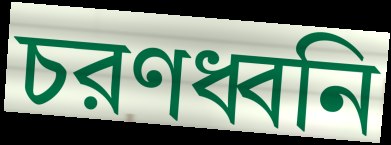
চরণধ্বনি